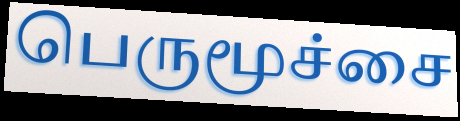
பெருமூச்சை